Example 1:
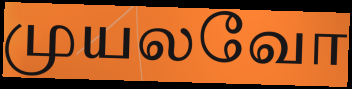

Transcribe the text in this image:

முயலவோ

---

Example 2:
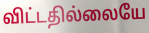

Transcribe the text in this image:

விட்டதில்லையே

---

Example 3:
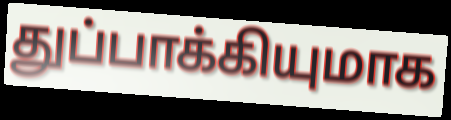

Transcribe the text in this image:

துப்பாக்கியுமாக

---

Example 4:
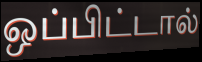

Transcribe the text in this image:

ஒப்பிட்டால்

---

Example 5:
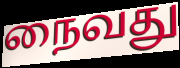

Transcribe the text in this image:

நைவது